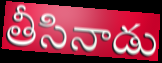
తీసినాడు